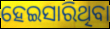
ହେଇସାରିଥିବା